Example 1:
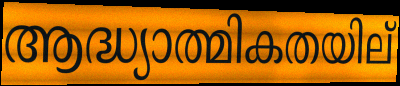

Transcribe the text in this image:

ആദ്ധ്യാത്മികതയില്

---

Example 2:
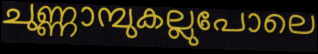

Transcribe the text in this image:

ചുണ്ണാമ്പുകല്ലുപോലെ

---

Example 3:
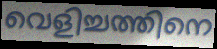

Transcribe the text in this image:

വെളിച്ചത്തിനെ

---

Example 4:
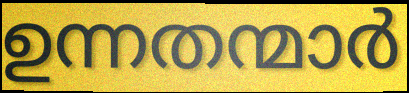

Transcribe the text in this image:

ഉന്നതന്മാർ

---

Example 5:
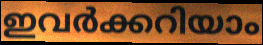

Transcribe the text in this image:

ഇവർക്കറിയാം